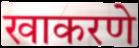
खाकरणे